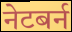
नेटबर्न